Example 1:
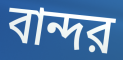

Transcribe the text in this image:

বান্দর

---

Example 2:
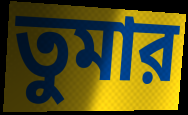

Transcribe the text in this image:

তুমার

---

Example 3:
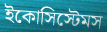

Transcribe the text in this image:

ইকোসিস্টেমস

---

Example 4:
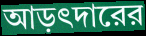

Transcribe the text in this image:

আড়ৎদারের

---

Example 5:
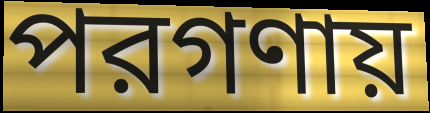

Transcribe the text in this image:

পরগণায়